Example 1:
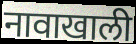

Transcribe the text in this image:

नावाखाली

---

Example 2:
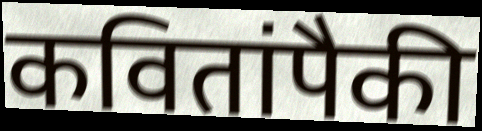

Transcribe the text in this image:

कवितांपैकी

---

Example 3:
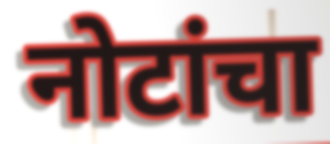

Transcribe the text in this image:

नोटांचा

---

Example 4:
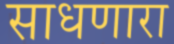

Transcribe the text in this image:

साधणारा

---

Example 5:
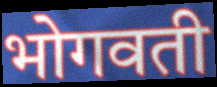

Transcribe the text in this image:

भोगवती